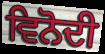
ਵਿਨੋਦੀ